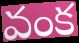
వంక